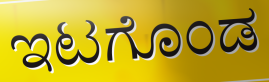
ಇಟಗೊಂಡ